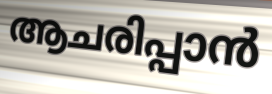
ആചരിപ്പാൻ